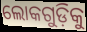
ଲୋକଗୁଡ଼ିକୁ